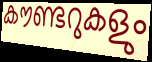
കൗണ്ടറുകളും